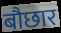
बौछार